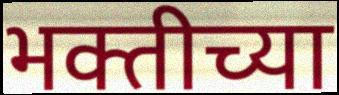
भक्‍तीच्या